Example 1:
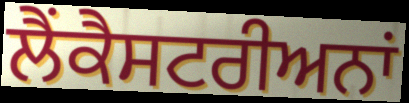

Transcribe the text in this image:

ਲੈਂਕੈਸਟਰੀਅਨਾਂ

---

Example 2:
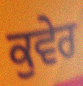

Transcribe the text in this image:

ਕੁਵੇਰ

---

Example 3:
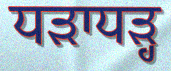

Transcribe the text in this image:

ਧੜਾਧੜ੍ਹ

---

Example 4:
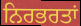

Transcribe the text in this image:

ਨਿਰਭਰਤਾਂ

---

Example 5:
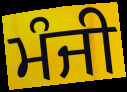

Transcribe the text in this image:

ਮੰਜੀ